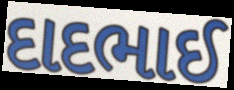
દાદભાઈ